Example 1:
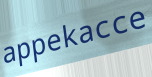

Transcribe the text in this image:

appekacce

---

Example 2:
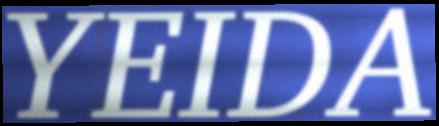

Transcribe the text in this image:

YEIDA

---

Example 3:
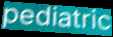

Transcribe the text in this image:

pediatric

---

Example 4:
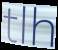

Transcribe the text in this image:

tlh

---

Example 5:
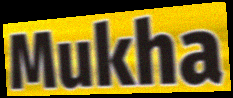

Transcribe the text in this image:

Mukha